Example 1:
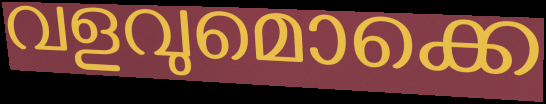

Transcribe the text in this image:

വളവുമൊക്കെ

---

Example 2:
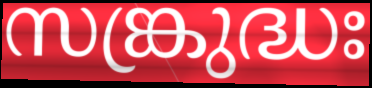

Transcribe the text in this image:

സങ്ക്രുദ്ധഃ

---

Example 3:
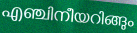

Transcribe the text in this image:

എഞ്ചിനീയറിങ്ങും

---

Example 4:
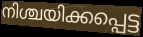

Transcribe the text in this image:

നിശ്ചയിക്കപ്പെട്ട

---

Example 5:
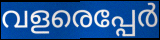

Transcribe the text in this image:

വളരെപ്പേർ